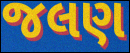
જલણ